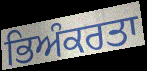
ਭਿਅੰਕਰਤਾ